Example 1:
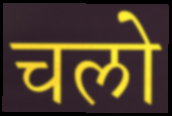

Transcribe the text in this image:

चलो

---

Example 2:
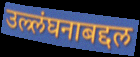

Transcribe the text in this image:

उल्लंघनाबद्दल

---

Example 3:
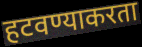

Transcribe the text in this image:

हटवण्याकरता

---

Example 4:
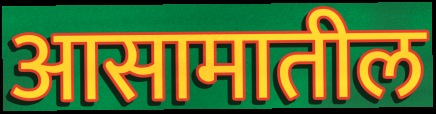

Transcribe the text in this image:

आसामातील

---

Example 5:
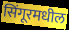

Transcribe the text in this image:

सिंगूरमधील